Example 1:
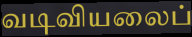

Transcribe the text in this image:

வடிவியலைப்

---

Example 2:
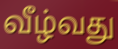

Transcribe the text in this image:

வீழ்வது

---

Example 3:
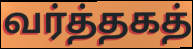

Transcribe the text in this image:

வர்த்தகத்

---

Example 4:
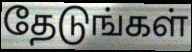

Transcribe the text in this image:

தேடுங்கள்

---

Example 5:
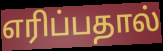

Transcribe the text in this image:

எரிப்பதால்